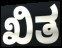
ಖಿತ